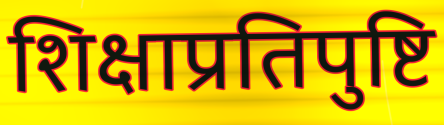
शिक्षाप्रतिपुष्टि